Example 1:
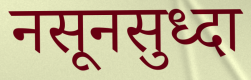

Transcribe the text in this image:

नसूनसुध्दा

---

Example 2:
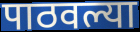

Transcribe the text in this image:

पाठवल्या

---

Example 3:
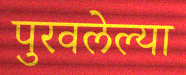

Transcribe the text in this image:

पुरवलेल्या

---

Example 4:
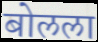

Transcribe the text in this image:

बोलला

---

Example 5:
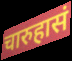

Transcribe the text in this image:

चारुहासं